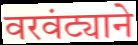
वरवंट्याने